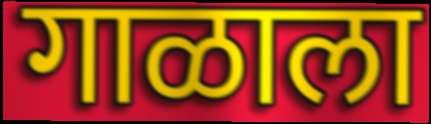
गाळाला